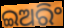
ଇଅରିଂ